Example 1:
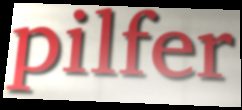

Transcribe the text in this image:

pilfer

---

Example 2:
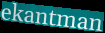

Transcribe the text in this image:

ekantman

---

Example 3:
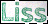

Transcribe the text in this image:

Liss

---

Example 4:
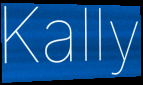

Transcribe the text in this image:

Kally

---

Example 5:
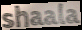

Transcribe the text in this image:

shaala